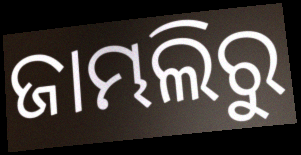
ଜାମ୍ଭଲିରୁ